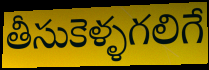
తీసుకెళ్ళగలిగే